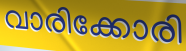
വാരിക്കോരി